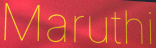
Maruthi